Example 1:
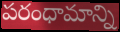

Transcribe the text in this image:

పరంధామాన్ని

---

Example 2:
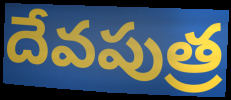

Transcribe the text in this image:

దేవపుత్ర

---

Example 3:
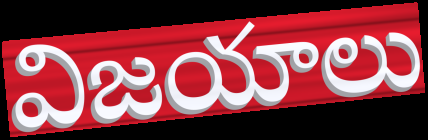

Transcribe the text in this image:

విజయాలు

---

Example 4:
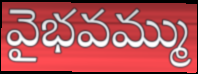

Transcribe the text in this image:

వైభవమ్ము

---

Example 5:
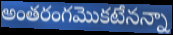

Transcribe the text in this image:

అంతరంగమొకటేనన్నా